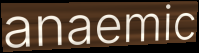
anaemic